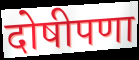
दोषीपणा